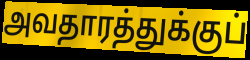
அவதாரத்துக்குப்